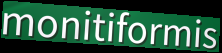
monitiformis